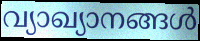
വ്യാഖ്യാനങ്ങൾ